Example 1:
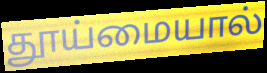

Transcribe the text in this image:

தூய்மையால்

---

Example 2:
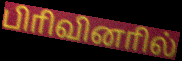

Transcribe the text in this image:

பிரிவினரில்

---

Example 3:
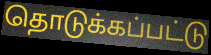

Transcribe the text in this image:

தொடுக்கப்பட்டு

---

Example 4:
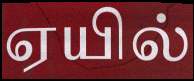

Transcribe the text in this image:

ஏயில்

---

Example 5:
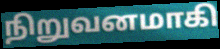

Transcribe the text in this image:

நிறுவனமாகி